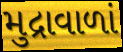
મુદ્રાવાળાં